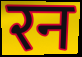
रन